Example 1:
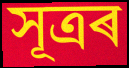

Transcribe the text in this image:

সূত্ৰৰ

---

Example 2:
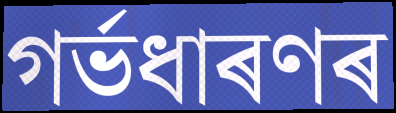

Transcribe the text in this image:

গৰ্ভধাৰণৰ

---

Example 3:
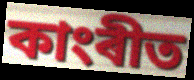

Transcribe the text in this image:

কাংৰীত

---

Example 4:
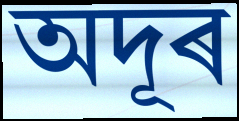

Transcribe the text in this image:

অদূৰ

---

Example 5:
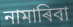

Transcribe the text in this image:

নামাৰিবা